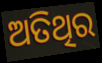
ଅତିଥିର